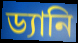
ড্যানি